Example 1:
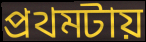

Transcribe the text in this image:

প্রথমটায়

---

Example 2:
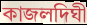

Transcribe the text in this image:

কাজলদিঘী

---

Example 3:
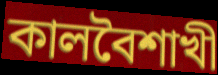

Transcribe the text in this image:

কালবৈশাখী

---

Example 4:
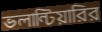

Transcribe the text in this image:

ভলান্টিয়ারির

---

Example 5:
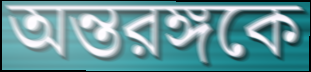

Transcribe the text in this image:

অন্তরঙ্গকে